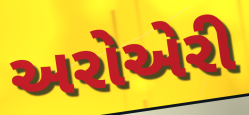
અરોએરી